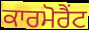
ਕਾਰਮੋਰੈਂਟ